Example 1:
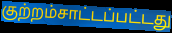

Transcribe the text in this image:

குற்றம்சாட்டப்பட்டது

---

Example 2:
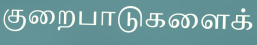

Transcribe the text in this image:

குறைபாடுகளைக்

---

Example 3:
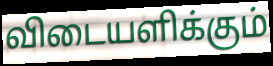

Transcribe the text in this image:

விடையளிக்கும்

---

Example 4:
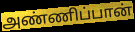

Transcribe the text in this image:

அண்ணிப்பான்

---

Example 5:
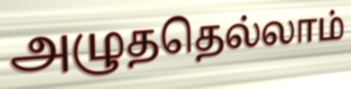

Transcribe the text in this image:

அழுததெல்லாம்